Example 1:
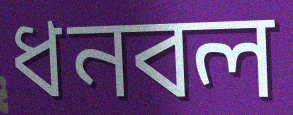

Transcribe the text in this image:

ধনবল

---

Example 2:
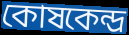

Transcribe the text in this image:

কোষকেন্দ্ৰ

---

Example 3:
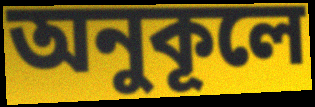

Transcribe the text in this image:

অনুকূলে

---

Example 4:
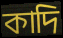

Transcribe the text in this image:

কাদি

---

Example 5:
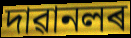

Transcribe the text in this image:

দাৱানলৰ